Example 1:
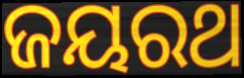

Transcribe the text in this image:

ଜୟରଥ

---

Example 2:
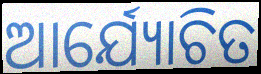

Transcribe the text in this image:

ଆର୍ଯ୍ୟୋଚିତ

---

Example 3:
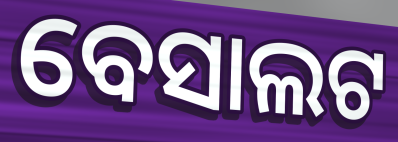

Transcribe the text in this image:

ବେସାଲଟ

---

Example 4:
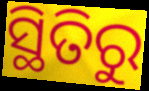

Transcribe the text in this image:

ସ୍ଥିତିରୁ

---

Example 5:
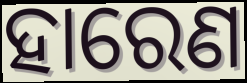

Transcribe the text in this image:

ହାରେଣ